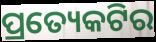
ପ୍ରତ୍ୟେକଟିର